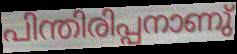
പിന്തിരിപ്പനാണു്